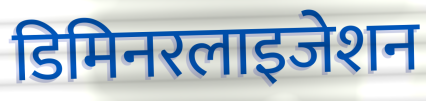
डिमिनरलाइजेशन